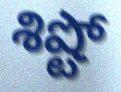
శిష్టో